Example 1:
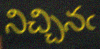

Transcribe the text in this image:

నిచ్చినఁ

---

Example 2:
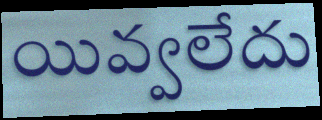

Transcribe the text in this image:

యివ్వలేదు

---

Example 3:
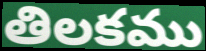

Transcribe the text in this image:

తిలకము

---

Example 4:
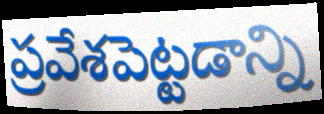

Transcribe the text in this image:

ప్రవేశపెట్టడాన్ని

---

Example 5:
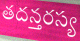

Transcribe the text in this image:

తదన్తరస్య